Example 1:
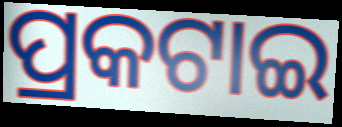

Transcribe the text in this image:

ପ୍ରକଟାଇ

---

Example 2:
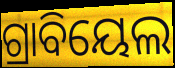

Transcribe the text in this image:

ଗ୍ରାବିୟେଲ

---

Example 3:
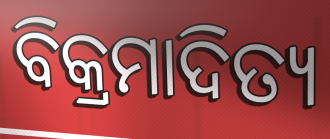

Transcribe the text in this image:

ବିକ୍ରମାଦିତ୍ୟ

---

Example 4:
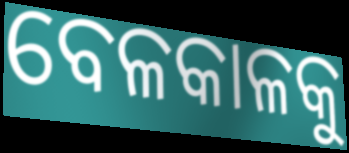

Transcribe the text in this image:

ବେଳକାଳକୁ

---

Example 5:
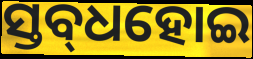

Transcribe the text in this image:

ସ୍ତବ୍‌ଧହୋଇ